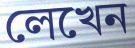
লেখেন